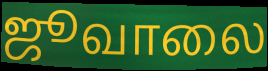
ஜூவாலை